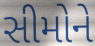
સીમોને